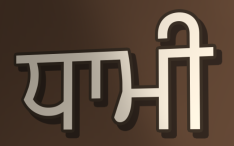
ਧਾਮੀ